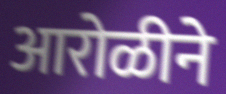
आरोळीने